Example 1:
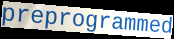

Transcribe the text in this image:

preprogrammed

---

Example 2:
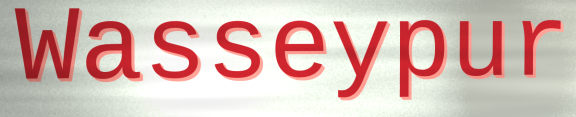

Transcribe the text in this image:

Wasseypur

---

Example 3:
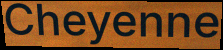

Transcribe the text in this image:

Cheyenne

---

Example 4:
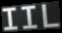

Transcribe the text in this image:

IIL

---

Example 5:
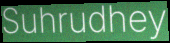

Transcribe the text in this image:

Suhrudhey